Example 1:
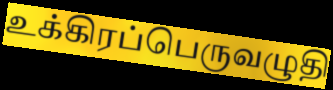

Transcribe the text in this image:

உக்கிரப்பெருவழுதி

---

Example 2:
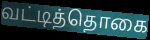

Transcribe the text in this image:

வட்டித்தொகை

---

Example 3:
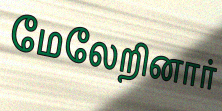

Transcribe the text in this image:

மேலேறினார்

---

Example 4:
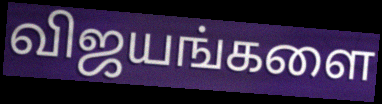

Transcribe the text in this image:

விஜயங்களை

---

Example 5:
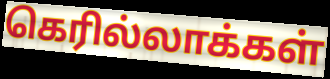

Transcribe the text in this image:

கெரில்லாக்கள்